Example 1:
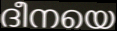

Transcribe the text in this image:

ദീനയെ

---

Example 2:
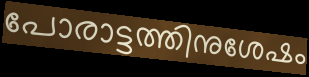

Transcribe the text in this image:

പോരാട്ടത്തിനുശേഷം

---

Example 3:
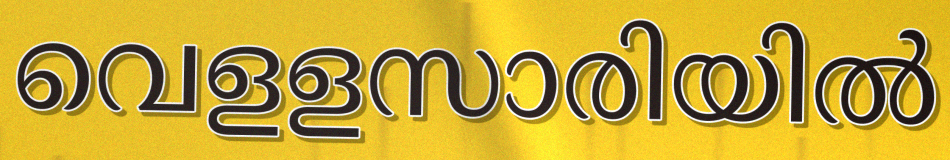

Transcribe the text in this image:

വെളളസാരിയിൽ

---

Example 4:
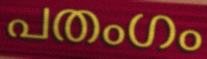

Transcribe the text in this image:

പതംഗം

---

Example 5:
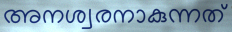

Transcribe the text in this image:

അനശ്വരനാകുന്നത്